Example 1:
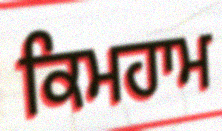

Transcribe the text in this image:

ਕਿਮਹਾਮ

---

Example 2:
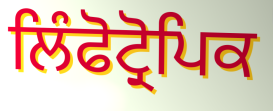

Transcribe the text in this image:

ਲਿੰਫੋਟ੍ਰੋਪਿਕ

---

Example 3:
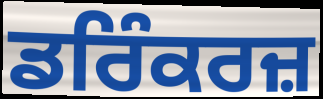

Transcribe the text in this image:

ਡਰਿੰਕਰਜ਼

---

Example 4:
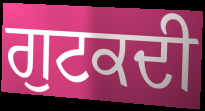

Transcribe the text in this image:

ਗੁਟਕਦੀ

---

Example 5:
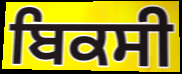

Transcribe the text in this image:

ਬਿਕਸੀ